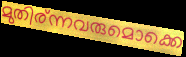
മുതിര്ന്നവരുമൊക്കെ